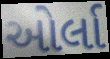
ઓર્લા